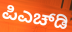
ಪಿಎಚ್‌ಡಿ